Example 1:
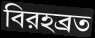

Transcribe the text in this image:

বিরহব্রত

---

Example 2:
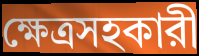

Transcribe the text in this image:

ক্ষেত্রসহকারী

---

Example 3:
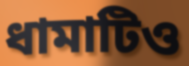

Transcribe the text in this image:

ধামাটিও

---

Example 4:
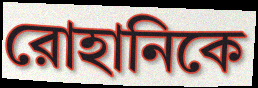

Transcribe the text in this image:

রোহানিকে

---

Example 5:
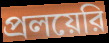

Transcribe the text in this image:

প্রলয়েরি